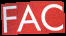
FAC